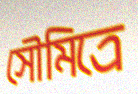
সৌমিত্রে